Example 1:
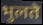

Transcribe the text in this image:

भुलते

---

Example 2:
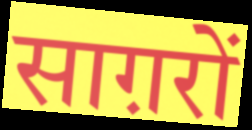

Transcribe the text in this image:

साग़रों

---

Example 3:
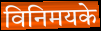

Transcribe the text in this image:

विनिमयके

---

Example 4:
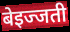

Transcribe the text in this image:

बेइज्जती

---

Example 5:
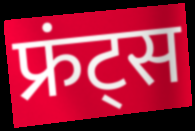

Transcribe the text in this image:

फ्रंट्स